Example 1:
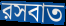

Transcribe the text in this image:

রসবাত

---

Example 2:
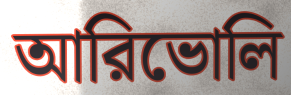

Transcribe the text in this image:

আরিভোলি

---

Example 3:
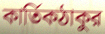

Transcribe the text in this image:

কার্তিকঠাকুর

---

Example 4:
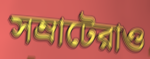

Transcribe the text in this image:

সম্রাটেরাও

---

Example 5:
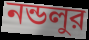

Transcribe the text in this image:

নন্ডলুর